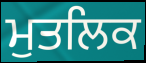
ਮੁਤਲਿਕ